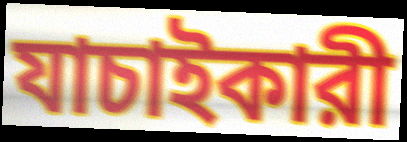
যাচাইকারী